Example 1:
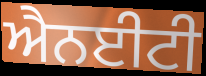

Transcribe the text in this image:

ਐਨਈਟੀ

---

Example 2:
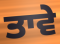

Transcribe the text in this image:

ਤਾਵੇ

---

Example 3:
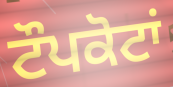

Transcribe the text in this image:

ਟੌਪਕੋਟਾਂ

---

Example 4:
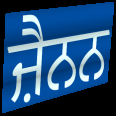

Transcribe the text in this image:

ਜ਼ੈਨਨ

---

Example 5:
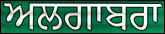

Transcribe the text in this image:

ਅਲਗਾਬਰਾ